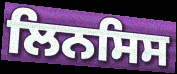
ਲਿਨਸਿਸ